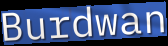
Burdwan